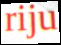
riju